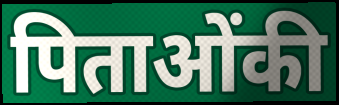
पिताओंकी